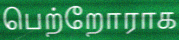
பெற்றோராக